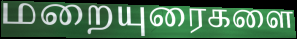
மறையுரைகளை